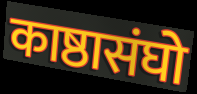
काष्ठासंघो